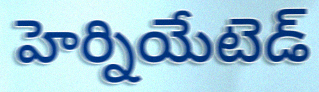
హెర్నియేటెడ్